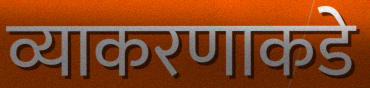
व्याकरणाकडे